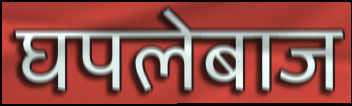
घपलेबाज